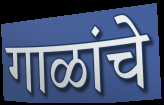
गाळांचे